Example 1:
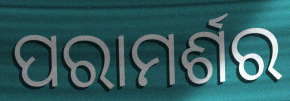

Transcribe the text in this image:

ପରାମର୍ଶର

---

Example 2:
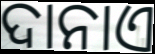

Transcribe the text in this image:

ଦାନାଏ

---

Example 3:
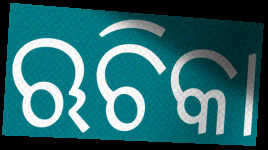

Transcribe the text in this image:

ଋଚିକା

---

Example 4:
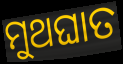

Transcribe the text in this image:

ମୁଥଘାତ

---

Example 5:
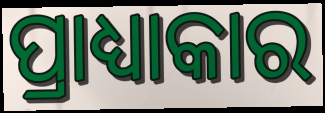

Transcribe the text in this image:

ପ୍ରାଧ୍ୟାକାର